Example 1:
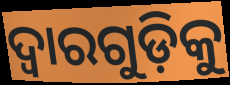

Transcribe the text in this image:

ଦ୍ୱାରଗୁଡ଼ିକୁ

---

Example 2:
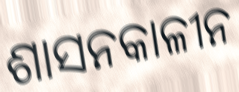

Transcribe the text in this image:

ଶାସନକାଳୀନ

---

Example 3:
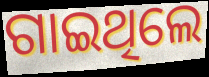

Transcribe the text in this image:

ଗାଇଥିଲେ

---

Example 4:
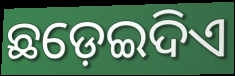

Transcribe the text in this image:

ଛଡ଼େଇଦିଏ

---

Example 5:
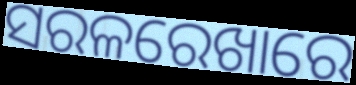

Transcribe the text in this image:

ସରଳରେଖାରେ